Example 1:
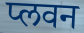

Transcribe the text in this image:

प्लवन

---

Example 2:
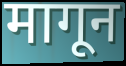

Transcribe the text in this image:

मागून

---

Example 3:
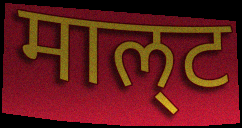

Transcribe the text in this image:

माल्ट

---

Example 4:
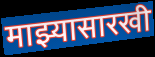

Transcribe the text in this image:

माझ्यासारखी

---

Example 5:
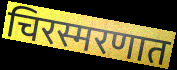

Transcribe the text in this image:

चिरस्मरणात